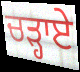
ਚੜ੍ਹਾਏ